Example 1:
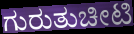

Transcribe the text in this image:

ಗುರುತುಚೀಟಿ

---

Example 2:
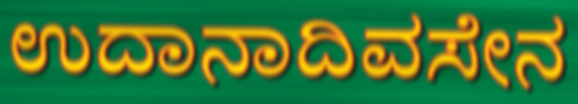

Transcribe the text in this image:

ಉದಾನಾದಿವಸೇನ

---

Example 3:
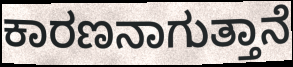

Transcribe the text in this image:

ಕಾರಣನಾಗುತ್ತಾನೆ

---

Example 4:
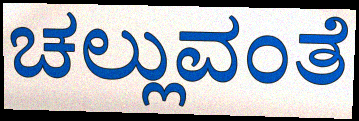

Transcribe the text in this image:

ಚಲ್ಲುವಂತೆ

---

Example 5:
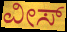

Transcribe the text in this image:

ವೀಸ್